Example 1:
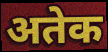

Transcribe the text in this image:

अतेक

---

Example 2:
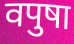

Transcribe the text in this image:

वपुषा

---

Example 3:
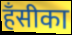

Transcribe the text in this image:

हँसीका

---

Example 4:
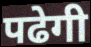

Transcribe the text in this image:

पढेगी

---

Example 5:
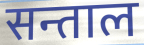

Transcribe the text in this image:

सन्ताल